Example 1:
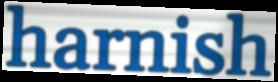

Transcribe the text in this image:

harnish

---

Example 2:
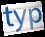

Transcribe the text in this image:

typ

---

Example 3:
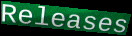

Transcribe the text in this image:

Releases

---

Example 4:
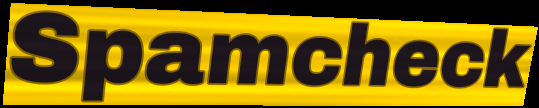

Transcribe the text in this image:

Spamcheck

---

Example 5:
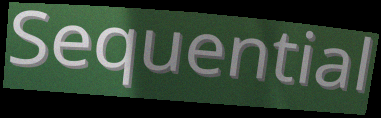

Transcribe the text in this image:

Sequential